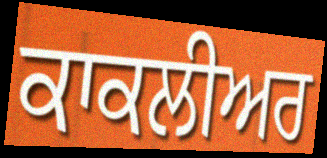
ਕਾਕਲੀਅਰ